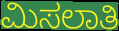
ಮಿಸಲಾತಿ